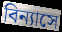
বিন্যাসে